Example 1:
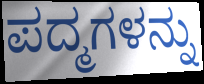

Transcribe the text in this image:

ಪದ್ಮಗಳನ್ನು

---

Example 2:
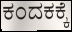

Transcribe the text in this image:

ಕಂದಕಕ್ಕೆ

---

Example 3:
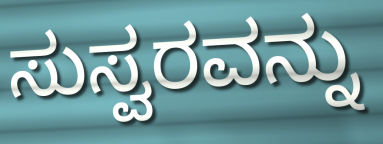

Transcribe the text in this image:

ಸುಸ್ವರವನ್ನು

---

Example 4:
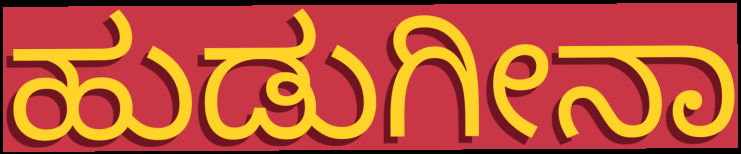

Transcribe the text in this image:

ಹುಡುಗೀನಾ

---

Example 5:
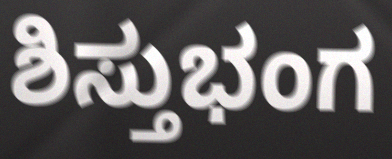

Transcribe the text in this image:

ಶಿಸ್ತುಭಂಗ